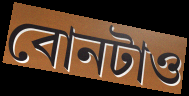
বোনটাও